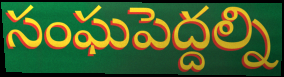
సంఘపెద్దల్ని